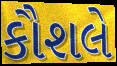
કૌશલે